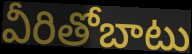
వీరితోబాటు